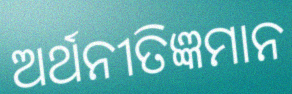
ଅର୍ଥନୀତିଜ୍ଞମାନ